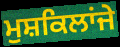
ਮੁਸ਼ਕਿਲਾਂਜੇ